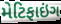
મેટિફાઇંગ